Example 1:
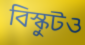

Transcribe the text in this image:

বিস্কুটও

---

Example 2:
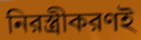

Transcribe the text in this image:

নিরস্ত্রীকরণই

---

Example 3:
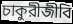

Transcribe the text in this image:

চাকুরীজীবি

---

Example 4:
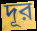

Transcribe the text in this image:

দূর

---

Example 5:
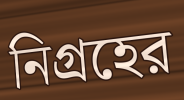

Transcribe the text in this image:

নিগ্রহের